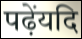
पढ़ेंयदि